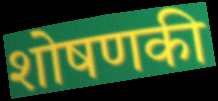
शोषणकी